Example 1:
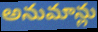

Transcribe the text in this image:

అనుమాన్లు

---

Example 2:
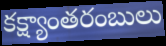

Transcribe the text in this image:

కక్ష్యాంతరంబులు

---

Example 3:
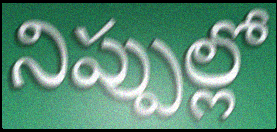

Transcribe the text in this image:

నిప్పుల్లో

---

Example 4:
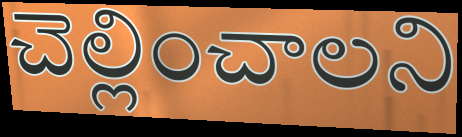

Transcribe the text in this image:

చెల్లించాలని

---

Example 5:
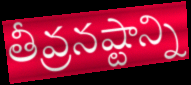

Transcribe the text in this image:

తీవ్రనష్టాన్ని